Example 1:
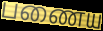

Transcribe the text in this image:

பணைய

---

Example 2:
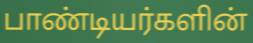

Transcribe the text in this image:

பாண்டியர்களின்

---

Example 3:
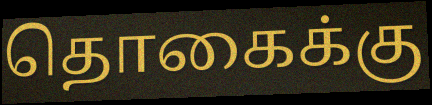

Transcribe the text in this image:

தொகைக்கு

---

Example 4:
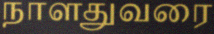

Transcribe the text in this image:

நாளதுவரை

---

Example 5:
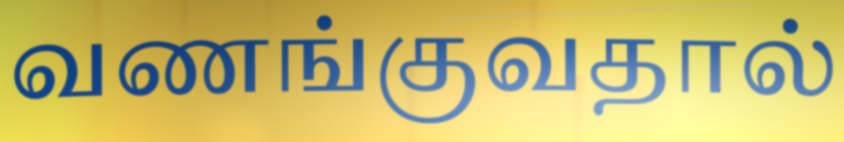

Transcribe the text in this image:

வணங்குவதால்